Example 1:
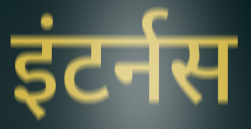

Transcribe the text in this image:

इंटर्नस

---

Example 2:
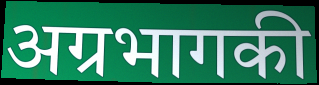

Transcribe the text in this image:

अग्रभागकी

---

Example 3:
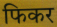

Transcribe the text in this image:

फिकर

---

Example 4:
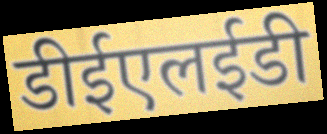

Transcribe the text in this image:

डीईएलईडी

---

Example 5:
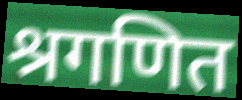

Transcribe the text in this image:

श्रगणित